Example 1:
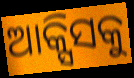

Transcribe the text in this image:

ଆକ୍ସିସକୁ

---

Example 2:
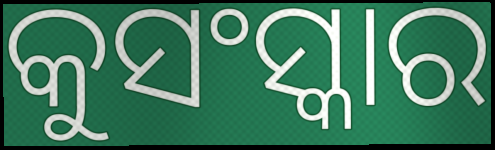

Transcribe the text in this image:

କୁସଂସ୍କାର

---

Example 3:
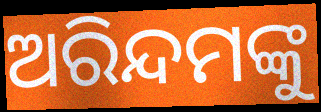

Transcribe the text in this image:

ଅରିନ୍ଦମଙ୍କୁ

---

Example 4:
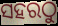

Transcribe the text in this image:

ସହରଠୁ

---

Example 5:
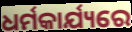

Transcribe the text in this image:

ଧର୍ମକାର୍ଯ୍ୟରେ